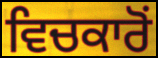
ਵਿਚਕਾਰੋਂ